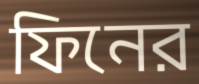
ফিনের